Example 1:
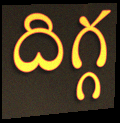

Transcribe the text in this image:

దిగ్గ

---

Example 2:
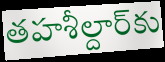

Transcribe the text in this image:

తహశీల్దార్‌కు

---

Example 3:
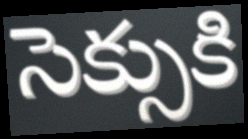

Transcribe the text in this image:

సెక్సుకి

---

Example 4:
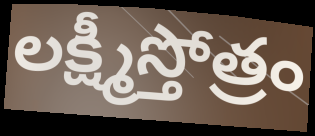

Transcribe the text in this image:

లక్ష్మీస్తోత్రం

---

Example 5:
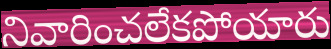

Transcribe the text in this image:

నివారించలేకపోయారు